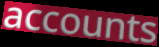
accounts